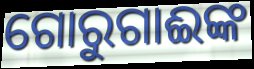
ଗୋରୁଗାଈଙ୍କ